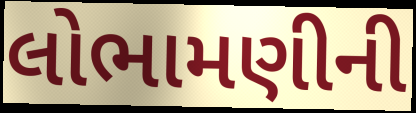
લોભામણીની